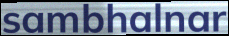
sambhalnar